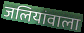
जलियांवाला